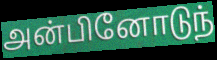
அன்பினோடுந்